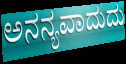
ಅನನ್ಯವಾದುದು